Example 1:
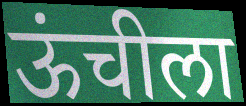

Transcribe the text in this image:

ऊंचीला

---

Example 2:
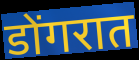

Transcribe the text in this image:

डोंगरात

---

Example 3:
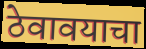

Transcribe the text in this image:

ठेवावयाचा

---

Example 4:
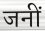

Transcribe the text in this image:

जनीं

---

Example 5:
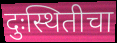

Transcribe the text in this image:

दुःस्थितीचा